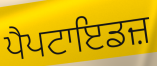
ਪੈਪਟਾਇਡਜ਼